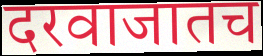
दरवाजातच